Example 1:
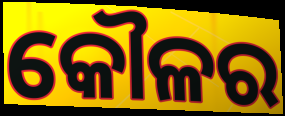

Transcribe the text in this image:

କୌଳର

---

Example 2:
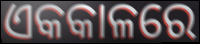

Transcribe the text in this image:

ଏକକାଳରେ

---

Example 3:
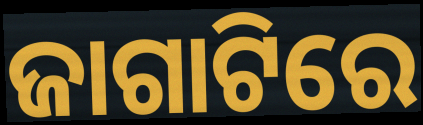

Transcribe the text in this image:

ଜାଗାଟିରେ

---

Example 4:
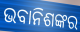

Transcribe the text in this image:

ଭବାନିଶଙ୍କର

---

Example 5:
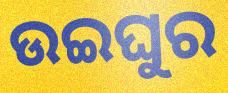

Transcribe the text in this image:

ଉଇଘୁର